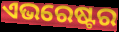
ଏଭରେଷ୍ଟର